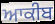
ਆਕੀਬ